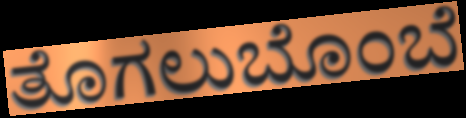
ತೊಗಲುಬೊಂಬೆ